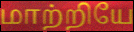
மாற்றியே